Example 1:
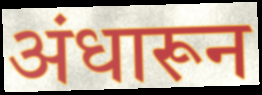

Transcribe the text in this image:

अंधारून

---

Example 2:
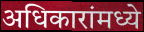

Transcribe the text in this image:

अधिकारांमध्ये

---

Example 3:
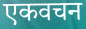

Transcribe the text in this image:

एकवचन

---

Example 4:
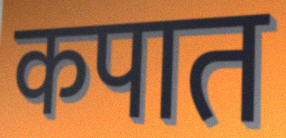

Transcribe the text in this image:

कपात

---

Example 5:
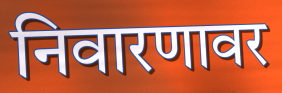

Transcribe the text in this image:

निवारणावर